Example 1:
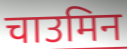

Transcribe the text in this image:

चाउमिन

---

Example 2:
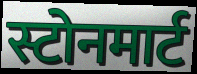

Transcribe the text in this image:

स्टोनमार्ट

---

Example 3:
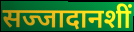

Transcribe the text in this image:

सज्जादानशीं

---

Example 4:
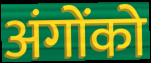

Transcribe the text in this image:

अंगोंको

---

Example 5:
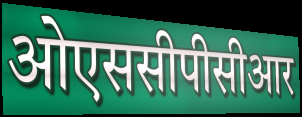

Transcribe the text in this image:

ओएससीपीसीआर